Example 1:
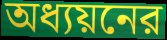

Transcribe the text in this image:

অধ্যয়নের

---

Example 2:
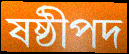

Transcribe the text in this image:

ষষ্ঠীপদ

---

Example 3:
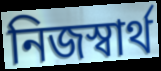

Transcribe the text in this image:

নিজস্বার্থ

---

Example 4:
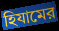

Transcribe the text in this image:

হিযামের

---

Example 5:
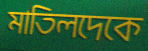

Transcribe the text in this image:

মাতিলদেকে